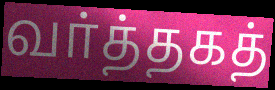
வர்த்தகத்